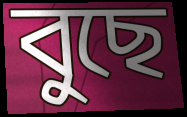
বুছে